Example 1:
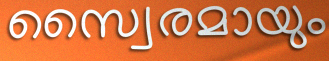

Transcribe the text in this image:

സ്വൈരമായും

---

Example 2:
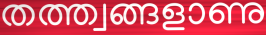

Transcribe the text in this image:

തത്ത്വങ്ങളാണു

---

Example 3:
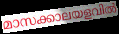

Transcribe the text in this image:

മാസക്കാലയളവിൽ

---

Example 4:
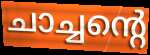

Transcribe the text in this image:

ചാച്ചന്റെ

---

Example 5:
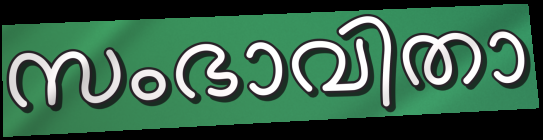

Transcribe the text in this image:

സംഭാവിതാ